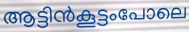
ആട്ടിൻകൂട്ടംപോലെ